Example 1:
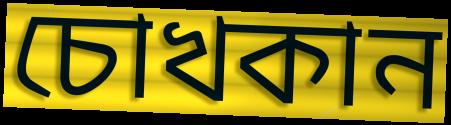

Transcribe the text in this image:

চোখকান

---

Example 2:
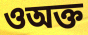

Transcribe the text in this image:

ওঅক্ত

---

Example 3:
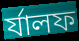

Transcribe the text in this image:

র্যালফ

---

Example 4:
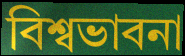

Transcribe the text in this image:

বিশ্বভাবনা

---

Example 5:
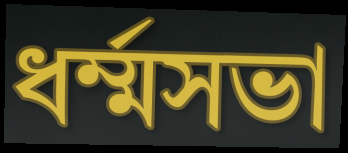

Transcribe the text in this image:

ধর্ম্মসভা